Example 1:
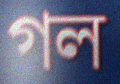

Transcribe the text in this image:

গল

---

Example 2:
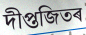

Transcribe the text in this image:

দীপ্তজিতৰ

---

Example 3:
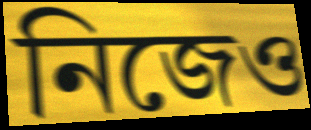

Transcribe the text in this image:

নিজেও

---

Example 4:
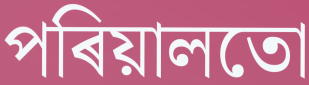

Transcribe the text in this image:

পৰিয়ালতো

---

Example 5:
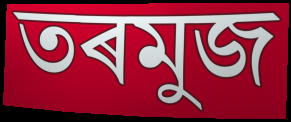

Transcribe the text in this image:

তৰমুজ